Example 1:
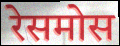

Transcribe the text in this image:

रेसमोस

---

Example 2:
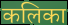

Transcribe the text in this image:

कलिका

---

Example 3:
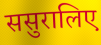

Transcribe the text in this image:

ससुरालिए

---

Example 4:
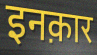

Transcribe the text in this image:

इनक़ार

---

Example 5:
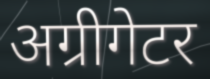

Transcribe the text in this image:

अग्रीगेटर